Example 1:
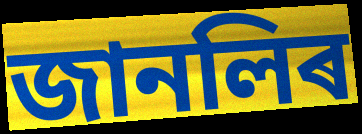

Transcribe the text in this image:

জানলিৰ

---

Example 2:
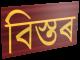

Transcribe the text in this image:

বিস্তৰ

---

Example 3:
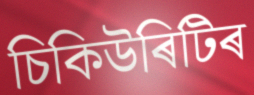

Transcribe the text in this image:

চিকিউৰিটিৰ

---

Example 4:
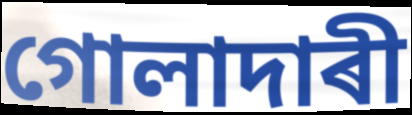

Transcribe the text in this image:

গোলাদাৰী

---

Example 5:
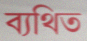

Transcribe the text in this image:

ব্যথিত